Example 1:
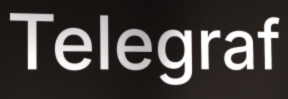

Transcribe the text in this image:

Telegraf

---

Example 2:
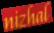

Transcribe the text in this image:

nizhal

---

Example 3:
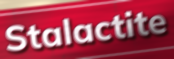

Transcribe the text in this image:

Stalactite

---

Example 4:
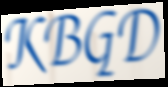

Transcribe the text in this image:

KBGD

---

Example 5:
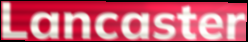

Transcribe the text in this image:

Lancaster